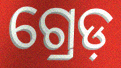
ଗ୍ରେଡ଼